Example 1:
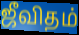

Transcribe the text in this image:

ஜீவிதம்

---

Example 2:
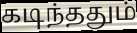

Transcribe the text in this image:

கடிந்ததும்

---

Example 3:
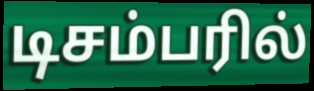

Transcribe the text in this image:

டிசம்பரில்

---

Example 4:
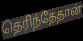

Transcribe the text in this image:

தெரிந்தேதான்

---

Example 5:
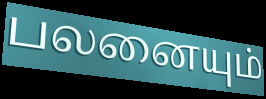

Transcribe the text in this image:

பலனையும்